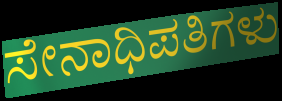
ಸೇನಾಧಿಪತಿಗಳು